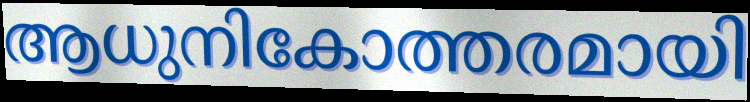
ആധുനികോത്തരമായി